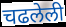
चढलेली